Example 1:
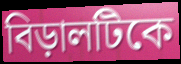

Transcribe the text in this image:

বিড়ালটিকে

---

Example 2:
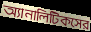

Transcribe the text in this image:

অ্যানালিটিকসের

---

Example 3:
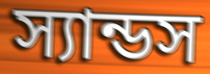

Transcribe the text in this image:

স্যান্ডস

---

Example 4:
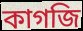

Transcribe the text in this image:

কাগজি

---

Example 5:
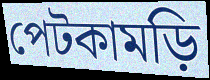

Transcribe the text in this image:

পেটকামড়ি